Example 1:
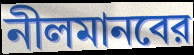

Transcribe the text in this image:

নীলমানবের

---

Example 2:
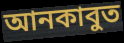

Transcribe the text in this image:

আনকাবুত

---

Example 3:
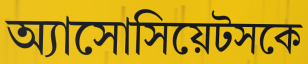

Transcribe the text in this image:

অ্যাসোসিয়েটসকে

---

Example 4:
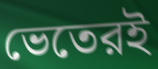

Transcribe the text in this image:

ভেতেরই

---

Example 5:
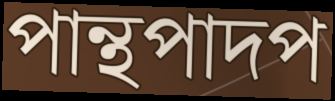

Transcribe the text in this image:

পান্থপাদপ